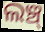
ଲଞ୍ଚ୍